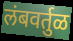
लंबवर्तुळ